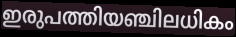
ഇരുപത്തിയഞ്ചിലധികം